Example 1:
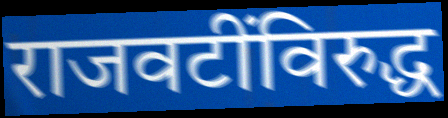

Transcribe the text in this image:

राजवटींविरुद्ध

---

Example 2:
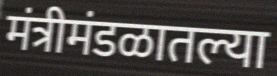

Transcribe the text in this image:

मंत्रीमंडळातल्या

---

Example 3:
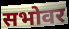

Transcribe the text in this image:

सभोवर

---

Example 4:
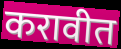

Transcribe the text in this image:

करावीत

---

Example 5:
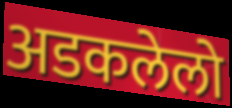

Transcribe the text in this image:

अडकलेलो